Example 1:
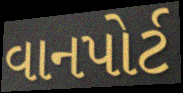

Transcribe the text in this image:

વાનપોર્ટ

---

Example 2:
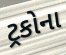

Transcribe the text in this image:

ટ્રકોના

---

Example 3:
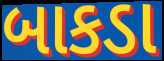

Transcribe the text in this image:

બાકડા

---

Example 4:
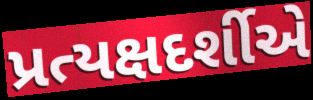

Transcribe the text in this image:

પ્રત્યક્ષદર્શીએ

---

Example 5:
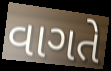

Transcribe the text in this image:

વાગતે